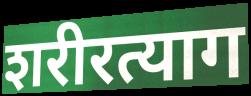
शरीरत्याग